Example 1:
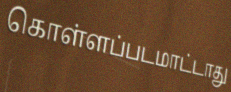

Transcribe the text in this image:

கொள்ளப்படமாட்டாது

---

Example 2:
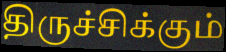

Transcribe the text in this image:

திருச்சிக்கும்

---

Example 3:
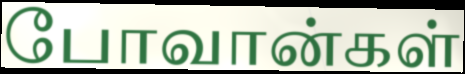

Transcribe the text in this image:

போவான்கள்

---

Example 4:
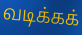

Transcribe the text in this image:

வடிக்கக்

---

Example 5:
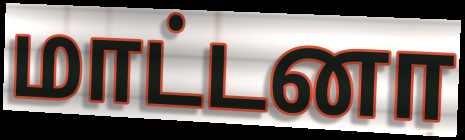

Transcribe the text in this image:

மாட்டனா